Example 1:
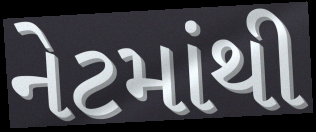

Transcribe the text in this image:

નેટમાંથી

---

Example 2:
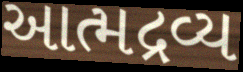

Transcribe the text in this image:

આત્મદ્રવ્ય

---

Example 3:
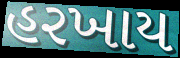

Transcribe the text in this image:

હરખાય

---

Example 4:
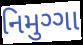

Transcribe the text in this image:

નિમુગ્ગા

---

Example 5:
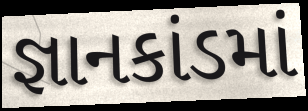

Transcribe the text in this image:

જ્ઞાનકાંડમાં